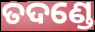
ତଦଣ୍ଡେ